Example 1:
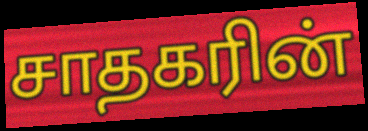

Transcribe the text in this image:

சாதகரின்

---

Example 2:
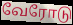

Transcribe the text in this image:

வேரோடு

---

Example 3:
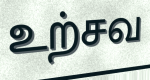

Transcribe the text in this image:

உற்சவ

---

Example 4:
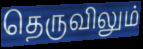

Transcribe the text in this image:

தெருவிலும்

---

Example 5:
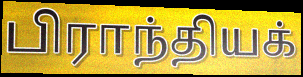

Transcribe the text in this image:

பிராந்தியக்